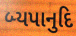
બ્યપાનુદિ